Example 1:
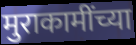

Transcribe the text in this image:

मुराकामींच्या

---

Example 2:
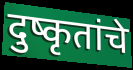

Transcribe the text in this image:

दुष्कृतांचे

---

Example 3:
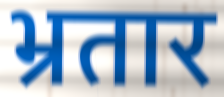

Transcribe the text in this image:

भ्रतार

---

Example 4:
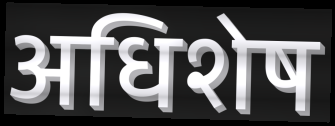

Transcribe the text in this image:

अधिशेष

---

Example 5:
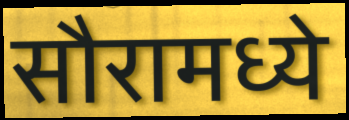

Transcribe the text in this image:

सौरामध्ये